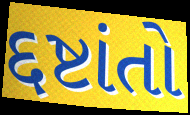
દ્દષ્ટાંતો